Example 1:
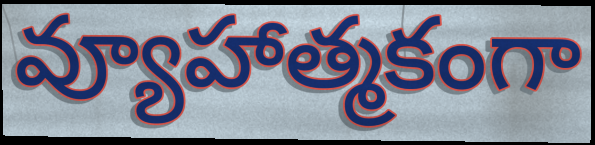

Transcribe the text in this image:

వ్యూహాత్మకంగా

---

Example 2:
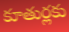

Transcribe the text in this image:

కూతుర్లకు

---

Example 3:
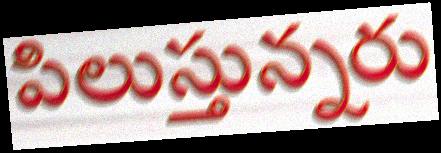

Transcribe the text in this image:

పిలుస్తున్నరు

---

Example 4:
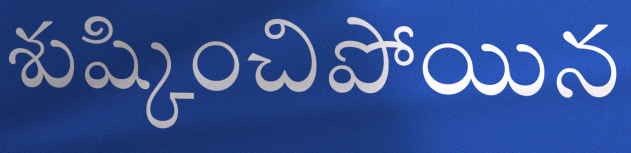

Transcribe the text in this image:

శుష్కించిపోయిన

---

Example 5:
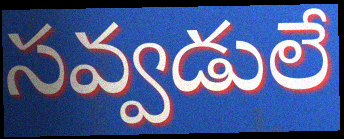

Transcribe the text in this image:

సవ్వడులే